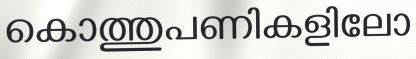
കൊത്തുപണികളിലോ